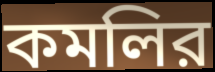
কমলির